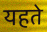
यहते